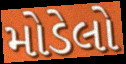
મોડેલો